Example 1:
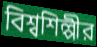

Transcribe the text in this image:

বিশ্বশিল্পীর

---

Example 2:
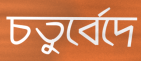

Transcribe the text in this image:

চতুর্বেদে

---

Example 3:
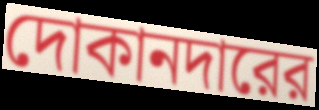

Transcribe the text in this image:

দোকানদারের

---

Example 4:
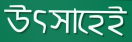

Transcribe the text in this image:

উৎসাহেই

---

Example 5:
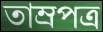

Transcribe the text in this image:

তাম্রপত্র